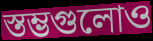
স্তম্ভগুলোও